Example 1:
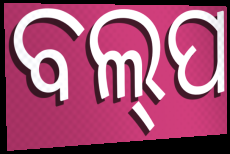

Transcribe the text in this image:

ବଲ୍‍ପ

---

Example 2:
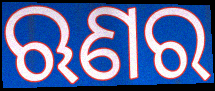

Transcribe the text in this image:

ଋଣର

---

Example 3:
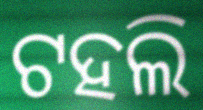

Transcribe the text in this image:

ଟହଲି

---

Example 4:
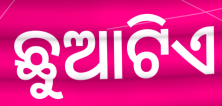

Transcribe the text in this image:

ଛୁଆଟିଏ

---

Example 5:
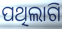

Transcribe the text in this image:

ପଥିଲାଗି